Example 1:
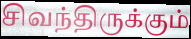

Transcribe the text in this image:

சிவந்திருக்கும்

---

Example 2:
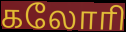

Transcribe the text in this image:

கலோரி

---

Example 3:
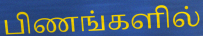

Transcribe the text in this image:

பிணங்களில்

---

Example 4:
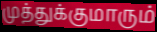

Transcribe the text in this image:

முத்துக்குமாரும்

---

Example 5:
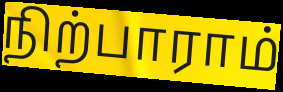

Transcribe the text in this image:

நிற்பாராம்